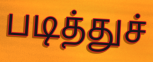
படித்துச்